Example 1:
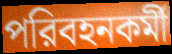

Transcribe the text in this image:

পরিবহনকর্মী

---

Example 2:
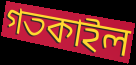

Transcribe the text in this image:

গতকাইল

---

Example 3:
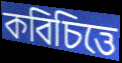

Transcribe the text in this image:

কবিচিত্তে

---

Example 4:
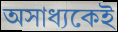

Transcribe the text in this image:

অসাধ্যকেই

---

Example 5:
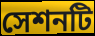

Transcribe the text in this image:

সেশনটি